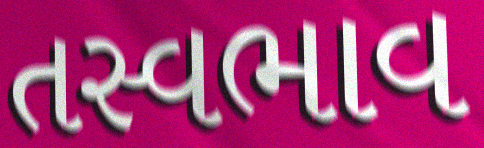
તસ્વભાવ